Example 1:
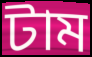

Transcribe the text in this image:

টাম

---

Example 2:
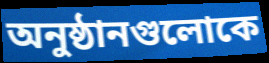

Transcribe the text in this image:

অনুষ্ঠানগুলোকে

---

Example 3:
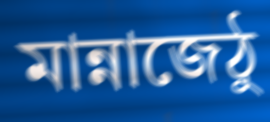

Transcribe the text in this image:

মান্নাজেঠু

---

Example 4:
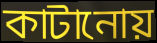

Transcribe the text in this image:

কাটানোয়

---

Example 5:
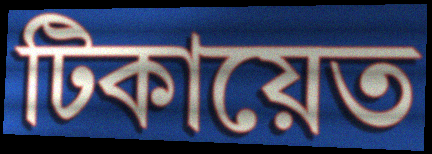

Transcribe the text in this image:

টিকায়েত